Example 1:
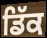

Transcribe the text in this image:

ਡਿੱਕ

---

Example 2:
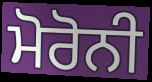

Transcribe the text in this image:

ਮੋਰੋਨੀ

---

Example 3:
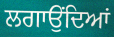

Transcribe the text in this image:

ਲਗਾਉੰਦਿਆਂ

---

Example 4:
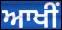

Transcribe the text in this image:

ਆਖੀਂ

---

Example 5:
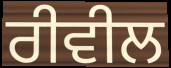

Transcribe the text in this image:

ਰੀਵੀਲ